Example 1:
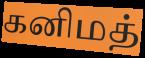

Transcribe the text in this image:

கனிமத்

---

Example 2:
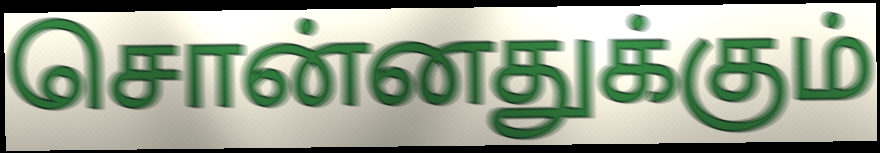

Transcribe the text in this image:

சொன்னதுக்கும்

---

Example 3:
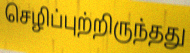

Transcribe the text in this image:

செழிப்புற்றிருந்தது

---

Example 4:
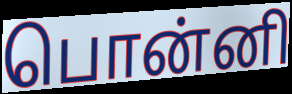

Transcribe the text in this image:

பொன்னி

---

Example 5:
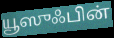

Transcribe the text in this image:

யூஸுஃபின்